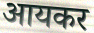
आयकर